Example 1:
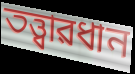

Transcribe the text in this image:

তত্ত্বাৱধান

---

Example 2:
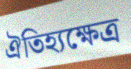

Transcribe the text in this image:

ঐতিহ্যক্ষেত্ৰ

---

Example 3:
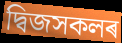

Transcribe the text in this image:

দ্বিজসকলৰ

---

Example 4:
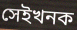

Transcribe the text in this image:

সেইখনক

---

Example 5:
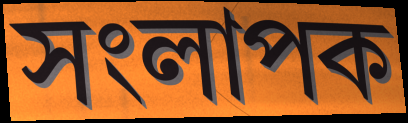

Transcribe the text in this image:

সংলাপক